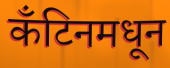
कँटिनमधून